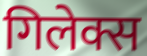
गिलेक्स